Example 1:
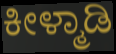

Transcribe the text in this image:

ಕೀಳ್ಮಾಡಿ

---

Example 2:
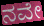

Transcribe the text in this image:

ನವೇ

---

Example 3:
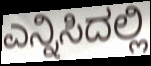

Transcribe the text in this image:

ಎನ್ನಿಸಿದಲ್ಲಿ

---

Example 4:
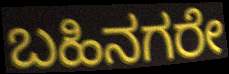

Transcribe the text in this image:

ಬಹಿನಗರೇ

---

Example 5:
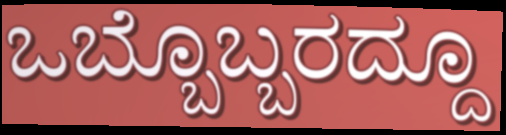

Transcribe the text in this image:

ಒಬ್ಬೊಬ್ಬರದ್ದೂ